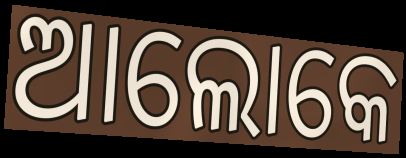
ଆଲୋକେ